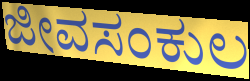
ಜೀವಸಂಕುಲ